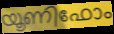
യൂണിഫോം